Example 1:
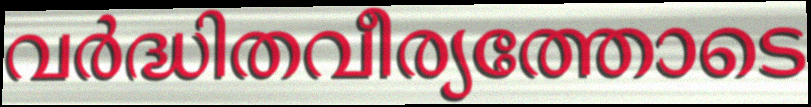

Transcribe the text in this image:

വർദ്ധിതവീര്യത്തോടെ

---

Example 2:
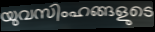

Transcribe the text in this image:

യുവസിംഹങ്ങളുടെ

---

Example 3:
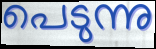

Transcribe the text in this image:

പെടുന്നു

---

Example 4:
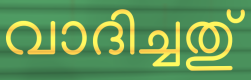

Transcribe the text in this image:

വാദിച്ചതു്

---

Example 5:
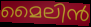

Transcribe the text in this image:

മൈലിൻ